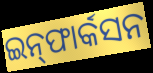
ଇନ୍‌ଫାର୍କସନ